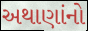
અથાણાંનો